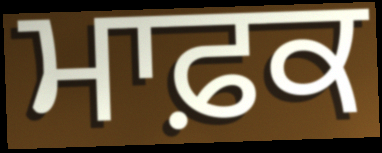
ਮਾਫ਼ਕ